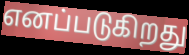
எனப்படுகிறது